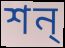
শন্